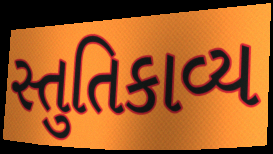
સ્તુતિકાવ્ય